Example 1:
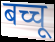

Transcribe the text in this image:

बच्चू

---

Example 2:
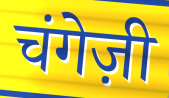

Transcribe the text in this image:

चंगेज़ी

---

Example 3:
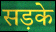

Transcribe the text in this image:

सड़के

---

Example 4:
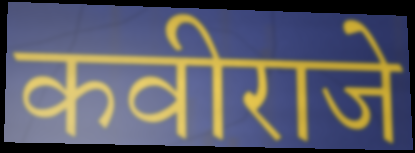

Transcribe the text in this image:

कवीराजे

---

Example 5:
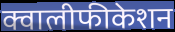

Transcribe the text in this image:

क्वालीफीकेशन